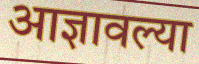
आज्ञावल्या